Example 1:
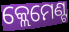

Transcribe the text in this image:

କ୍ଲେମେଣ୍ଟ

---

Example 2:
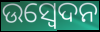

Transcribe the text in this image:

ଉସ୍ୱେଦନ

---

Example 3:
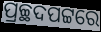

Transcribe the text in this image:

ପ୍ରଚ୍ଛଦପଟ୍ଟରେ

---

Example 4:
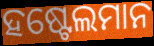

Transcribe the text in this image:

ହଷ୍ଟେଲମାନ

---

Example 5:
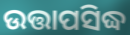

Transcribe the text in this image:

ଉତ୍ତାପସିଦ୍ଧ